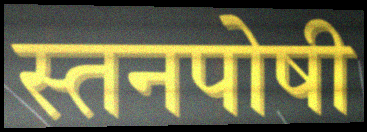
स्तनपोषी